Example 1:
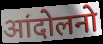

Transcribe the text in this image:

आंदोलनो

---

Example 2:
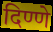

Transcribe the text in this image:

दिण्णे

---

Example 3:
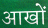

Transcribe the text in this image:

आखों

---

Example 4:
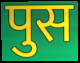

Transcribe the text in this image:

पुस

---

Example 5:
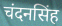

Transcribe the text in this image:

चंदनसिंह